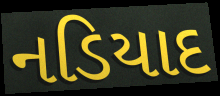
નડિયાદ